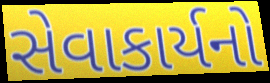
સેવાકાર્યનો